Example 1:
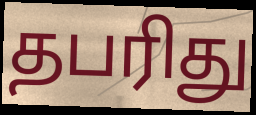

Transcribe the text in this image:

தபரிது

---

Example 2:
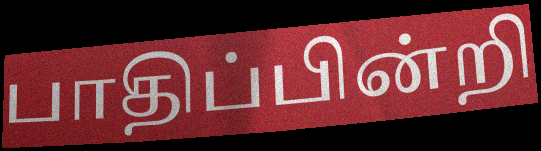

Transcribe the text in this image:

பாதிப்பின்றி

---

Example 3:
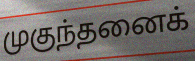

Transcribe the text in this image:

முகுந்தனைக்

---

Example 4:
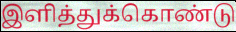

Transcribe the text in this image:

இளித்துக்கொண்டு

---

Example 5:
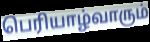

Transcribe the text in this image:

பெரியாழ்வாரும்